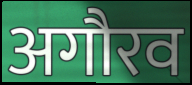
अगौरव